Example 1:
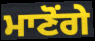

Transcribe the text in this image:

ਮਾਣੋਂਗੇ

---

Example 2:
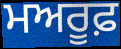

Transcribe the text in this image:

ਮਅਰੂਫ਼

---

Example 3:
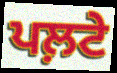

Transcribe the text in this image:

ਪਲ਼ਟੇ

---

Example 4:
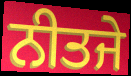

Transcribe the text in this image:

ਨੀਤਜੇ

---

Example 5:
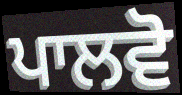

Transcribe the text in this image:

ਪਾਲਵੋ